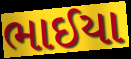
ભાઈયા